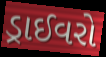
ડ્રાઈવરો